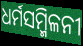
ଧର୍ମସମ୍ମିଳନୀ